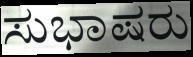
ಸುಭಾಷರು